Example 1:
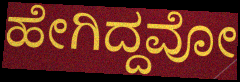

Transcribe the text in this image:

ಹೇಗಿದ್ದವೋ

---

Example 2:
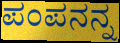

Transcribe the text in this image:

ಪಂಪನನ್ನ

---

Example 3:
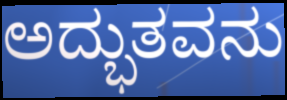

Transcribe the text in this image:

ಅದ್ಭುತವನು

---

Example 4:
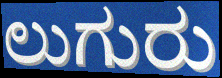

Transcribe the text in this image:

ಲುಗುರು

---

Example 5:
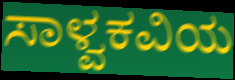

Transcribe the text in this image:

ಸಾಳ್ವಕವಿಯ